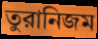
তুরানিজম